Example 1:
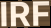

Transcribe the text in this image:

IRF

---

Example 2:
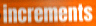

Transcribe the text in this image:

increments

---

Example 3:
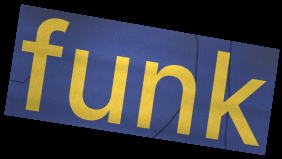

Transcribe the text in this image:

funk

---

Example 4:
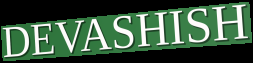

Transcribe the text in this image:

DEVASHISH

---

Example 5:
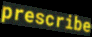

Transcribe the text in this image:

prescribe